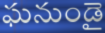
ఘనుండై